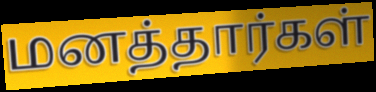
மனத்தார்கள்